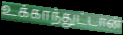
உக்காந்துட்டான்